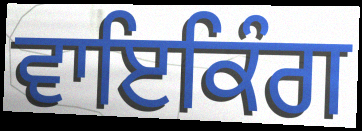
ਵਾਇਕਿੰਗ